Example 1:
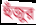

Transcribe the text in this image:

হুঁজুর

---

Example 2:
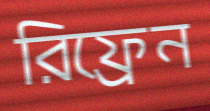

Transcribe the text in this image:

রিফ্রেন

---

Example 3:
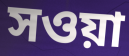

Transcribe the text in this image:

সওয়া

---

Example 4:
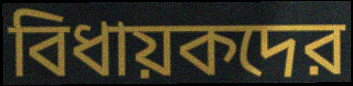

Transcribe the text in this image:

বিধায়কদের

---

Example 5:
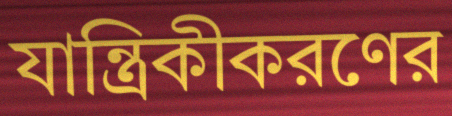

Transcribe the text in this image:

যান্ত্রিকীকরণের